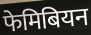
फेमिबियन